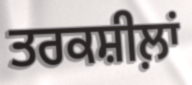
ਤਰਕਸ਼ੀਲ਼ਾਂ